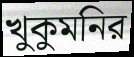
খুকুমনির